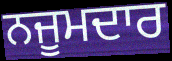
ਨਜੂਮਦਾਰ